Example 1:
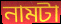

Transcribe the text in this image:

নামটা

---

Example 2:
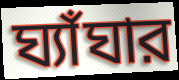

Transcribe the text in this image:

ঘ্যাঁঘার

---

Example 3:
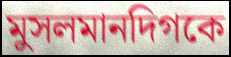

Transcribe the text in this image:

মুসলমানদিগকে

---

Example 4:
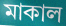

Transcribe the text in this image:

মাকাল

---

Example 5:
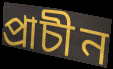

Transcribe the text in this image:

প্রাচীন